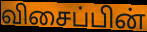
விசைப்பின்